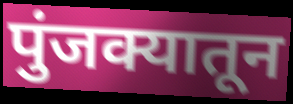
पुंजक्यातून